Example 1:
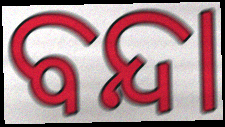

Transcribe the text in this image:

ବନ୍ଦା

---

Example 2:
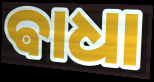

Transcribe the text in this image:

ଵାଧା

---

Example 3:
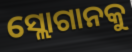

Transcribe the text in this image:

ସ୍ଲୋଗାନକୁ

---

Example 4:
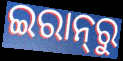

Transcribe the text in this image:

ଇରାନ୍‌ରୁ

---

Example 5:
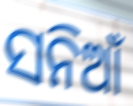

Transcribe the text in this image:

ସନିଆଁ